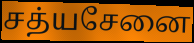
சத்யசேனை